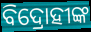
ବିଦ୍ରୋହୀଙ୍କ